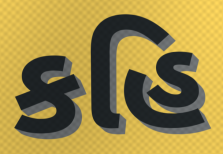
કહિ